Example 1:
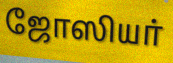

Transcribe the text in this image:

ஜோஸியர்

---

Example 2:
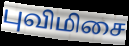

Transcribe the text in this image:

புவிமிசை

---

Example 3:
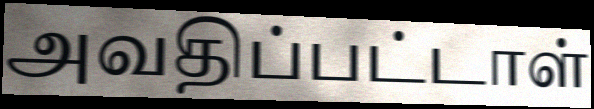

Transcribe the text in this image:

அவதிப்பட்டாள்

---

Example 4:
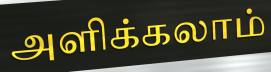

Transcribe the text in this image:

அளிக்கலாம்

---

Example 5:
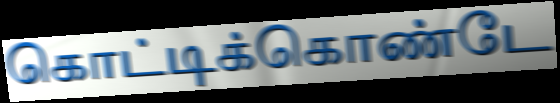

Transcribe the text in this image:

கொட்டிக்கொண்டே